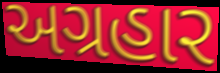
અગ્રહાર